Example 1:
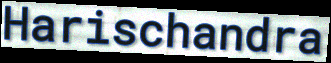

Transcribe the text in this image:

Harischandra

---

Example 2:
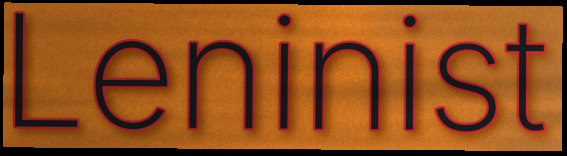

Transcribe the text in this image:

Leninist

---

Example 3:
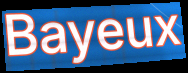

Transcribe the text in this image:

Bayeux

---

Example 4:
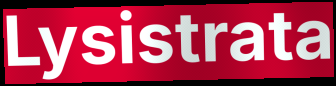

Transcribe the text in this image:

Lysistrata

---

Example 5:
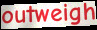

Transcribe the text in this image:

outweigh